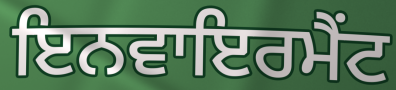
ਇਨਵਾਇਰਮੈਂਟ